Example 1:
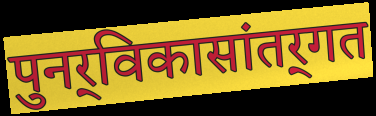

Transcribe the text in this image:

पुनर्विकासांतर्गत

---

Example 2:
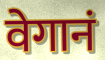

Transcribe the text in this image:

वेगानं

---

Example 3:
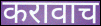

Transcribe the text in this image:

करावाच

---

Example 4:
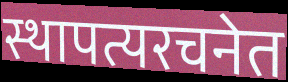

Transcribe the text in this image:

स्थापत्यरचनेत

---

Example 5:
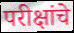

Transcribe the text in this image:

परीक्षांचे